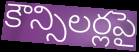
కౌన్సిలర్లపై